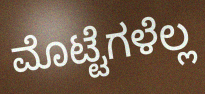
ಮೊಟ್ಟೆಗಳೆಲ್ಲ